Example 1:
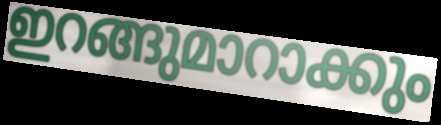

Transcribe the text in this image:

ഇറങ്ങുമാറാക്കും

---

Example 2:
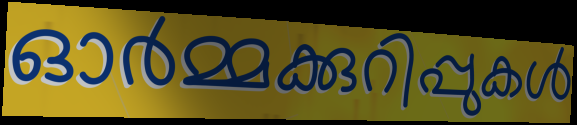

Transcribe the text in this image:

ഓർമ്മക്കുറിപ്പുകൾ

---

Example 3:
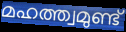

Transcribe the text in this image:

മഹത്ത്വമുണ്ട്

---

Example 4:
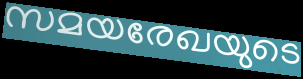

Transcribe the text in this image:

സമയരേഖയുടെ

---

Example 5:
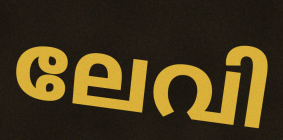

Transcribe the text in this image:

ലേവി